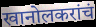
खानोलकरांचं